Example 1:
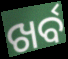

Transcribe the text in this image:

ଖର୍ବ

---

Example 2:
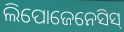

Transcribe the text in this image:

ଲିପୋଜେନେସିସ୍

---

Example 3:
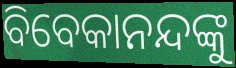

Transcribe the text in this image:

ବିବେକାନନ୍ଦଙ୍କୁ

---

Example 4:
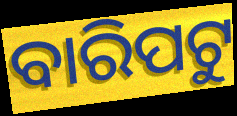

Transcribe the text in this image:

ବାରିପଟୁ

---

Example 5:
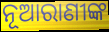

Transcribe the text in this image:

ନୂଆରାଣୀଙ୍କ